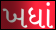
ખધાં